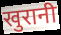
खुरानी